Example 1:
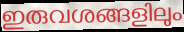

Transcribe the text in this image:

ഇരുവശങ്ങളിലും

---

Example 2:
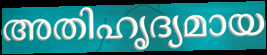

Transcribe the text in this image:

അതിഹൃദ്യമായ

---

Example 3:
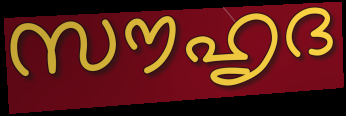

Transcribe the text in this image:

സൗഹൃദ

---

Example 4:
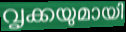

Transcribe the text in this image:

വൃക്കയുമായി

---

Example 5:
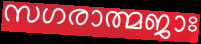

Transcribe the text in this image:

സഗരാത്മജാഃ